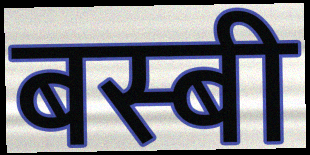
बस्बी